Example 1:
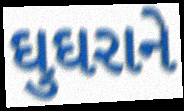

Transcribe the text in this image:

ઘુઘરાને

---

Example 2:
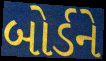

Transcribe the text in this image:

બોર્ડને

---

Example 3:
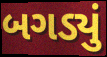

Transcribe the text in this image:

બગડ્યું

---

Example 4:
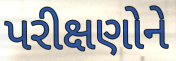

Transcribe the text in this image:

પરીક્ષણોને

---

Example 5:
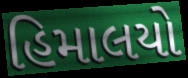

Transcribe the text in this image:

હિમાલયો